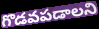
గొడవపడాలని